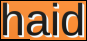
haid